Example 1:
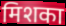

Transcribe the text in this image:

मिशका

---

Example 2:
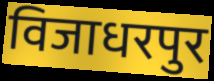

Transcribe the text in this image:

विजाधरपुर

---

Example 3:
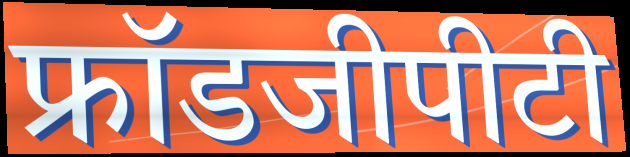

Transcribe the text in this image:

फ्रॉडजीपीटी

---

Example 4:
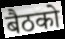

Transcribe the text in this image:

बैठको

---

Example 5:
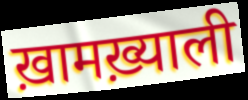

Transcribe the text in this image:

ख़ामख़्याली